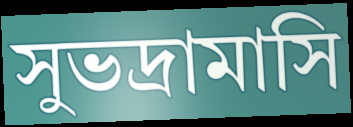
সুভদ্রামাসি